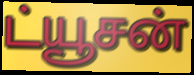
ட்யூசன்